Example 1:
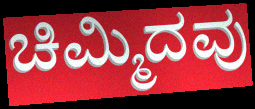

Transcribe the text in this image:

ಚಿಮ್ಮಿದವು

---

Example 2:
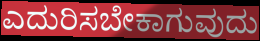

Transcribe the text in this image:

ಎದುರಿಸಬೇಕಾಗುವುದು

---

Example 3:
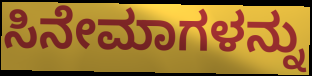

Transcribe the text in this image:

ಸಿನೇಮಾಗಳನ್ನು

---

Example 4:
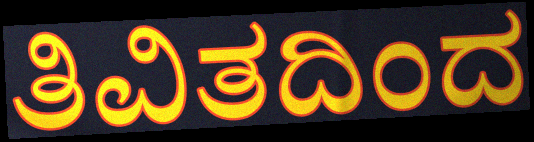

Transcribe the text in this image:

ತಿವಿತದಿಂದ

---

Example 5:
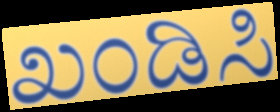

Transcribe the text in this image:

ಖಂಡಿಸಿ